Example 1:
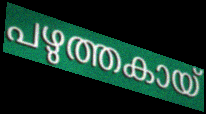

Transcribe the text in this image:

പഴുത്തകായ്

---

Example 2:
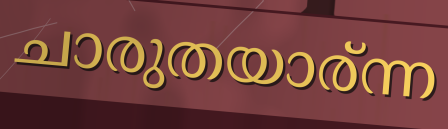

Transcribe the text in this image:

ചാരുതയാര്ന്ന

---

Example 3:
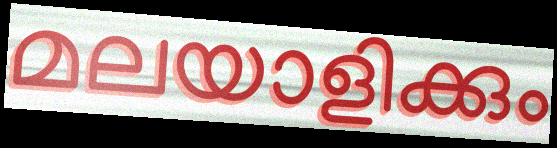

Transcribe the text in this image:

മലയാളിക്കും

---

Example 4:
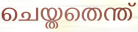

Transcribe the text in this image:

ചെയ്തതെന്ത്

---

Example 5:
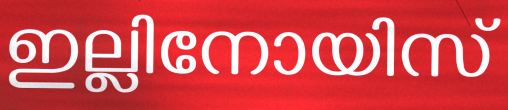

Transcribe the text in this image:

ഇല്ലിനോയിസ്